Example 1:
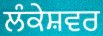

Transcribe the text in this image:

ਲੰਕੇਸ਼ਵਰ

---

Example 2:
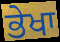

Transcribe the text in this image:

ਭੇਖਾ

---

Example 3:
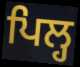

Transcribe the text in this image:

ਪਿਲ੍ਹ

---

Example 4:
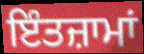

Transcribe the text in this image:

ਇੰਤਜ਼ਾਮਾਂ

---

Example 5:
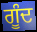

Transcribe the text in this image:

ਗੂੰਦ